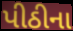
પીઠીના